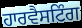
ਹਾਰਵੈਸਟਿੰਗ